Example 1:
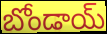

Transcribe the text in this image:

బోండాయ్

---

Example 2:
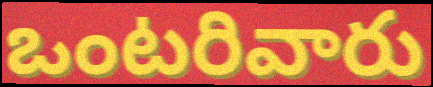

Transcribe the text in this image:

ఒంటరివారు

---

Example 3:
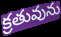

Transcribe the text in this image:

క్రతువును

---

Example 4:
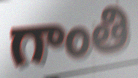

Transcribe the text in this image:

గాంతి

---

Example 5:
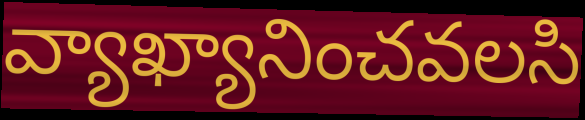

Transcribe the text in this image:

వ్యాఖ్యానించవలసి